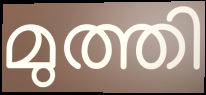
മുത്തി